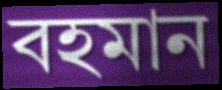
বহমান